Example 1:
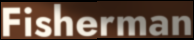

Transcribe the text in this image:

Fisherman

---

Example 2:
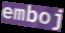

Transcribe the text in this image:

emboj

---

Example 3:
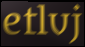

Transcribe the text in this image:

etluj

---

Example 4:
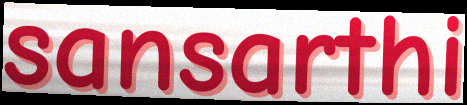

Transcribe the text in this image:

sansarthi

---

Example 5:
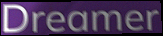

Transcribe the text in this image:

Dreamer